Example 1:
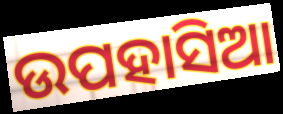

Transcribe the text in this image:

ଉପହାସିଆ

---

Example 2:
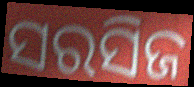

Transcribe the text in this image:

ସରସିଜ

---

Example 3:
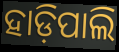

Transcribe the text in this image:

ହାଡ଼ିପାଲି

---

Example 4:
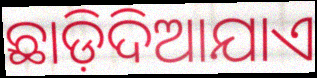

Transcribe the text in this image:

ଛାଡ଼ିଦିଆଯାଏ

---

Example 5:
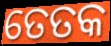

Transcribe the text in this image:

ତେତକ